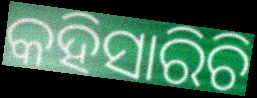
କହିସାରିଚି